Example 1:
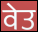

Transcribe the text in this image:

वेउ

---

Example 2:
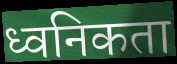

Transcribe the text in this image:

ध्वनिकता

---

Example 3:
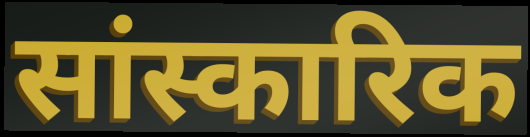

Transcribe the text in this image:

सांस्कारिक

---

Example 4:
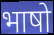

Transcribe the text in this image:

भाषो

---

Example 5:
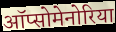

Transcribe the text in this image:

ऑप्सोमेनोरिया